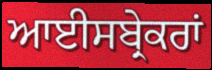
ਆਈਸਬ੍ਰੇਕਰਾਂ